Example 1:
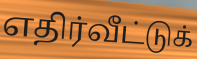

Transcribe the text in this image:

எதிர்வீட்டுக்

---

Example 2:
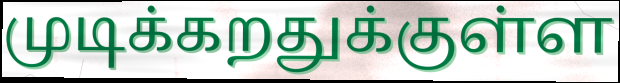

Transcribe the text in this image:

முடிக்கறதுக்குள்ள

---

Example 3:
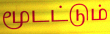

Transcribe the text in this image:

மூடட்டும்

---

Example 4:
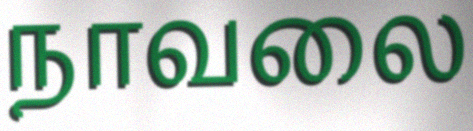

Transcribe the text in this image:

நாவலை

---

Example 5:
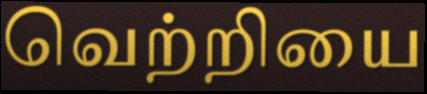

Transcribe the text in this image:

வெற்றியை